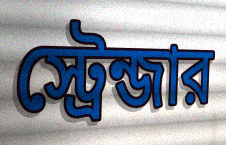
স্ট্রেন্জার